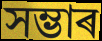
সম্ভাৰ